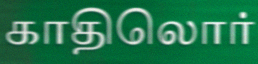
காதிலொர்